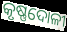
କୃଷ୍ଣଦୋଳୀ